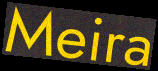
Meira